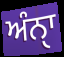
ਅੰਨੑਾ